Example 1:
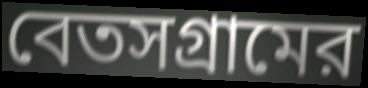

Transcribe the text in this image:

বেতসগ্রামের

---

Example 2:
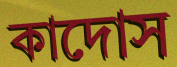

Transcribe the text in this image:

কাদোস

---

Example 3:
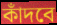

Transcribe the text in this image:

কাঁদবে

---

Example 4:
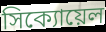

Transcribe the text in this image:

সিক্যোয়েল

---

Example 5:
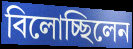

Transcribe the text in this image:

বিলোচ্ছিলেন